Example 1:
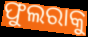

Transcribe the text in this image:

ଫୁଲରାକୁ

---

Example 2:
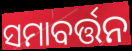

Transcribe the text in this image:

ସମାବର୍ତ୍ତନ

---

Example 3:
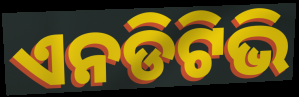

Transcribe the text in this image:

ଏନଡିଟିଭି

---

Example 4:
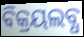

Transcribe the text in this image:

ବିକ୍ରୟଲବ୍ଧ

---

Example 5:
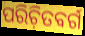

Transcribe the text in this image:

ପରିଚ଼ିତବର୍ଗ